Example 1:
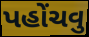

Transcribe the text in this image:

પહોંચવુ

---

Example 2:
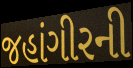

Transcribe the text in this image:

જહાંગીરની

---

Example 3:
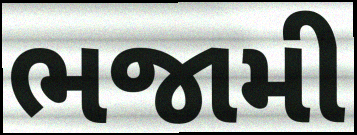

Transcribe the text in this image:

ભજામી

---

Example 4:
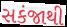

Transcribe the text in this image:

સકંજાથી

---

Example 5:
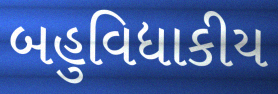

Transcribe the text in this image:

બહુવિદ્યાકીય